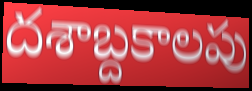
దశాబ్దకాలపు